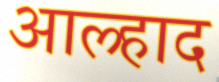
आल्हाद